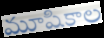
మూషికాల